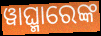
ୱାଘ୍ମାରେଙ୍କ